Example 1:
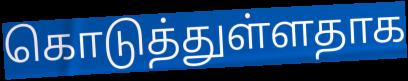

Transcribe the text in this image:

கொடுத்துள்ளதாக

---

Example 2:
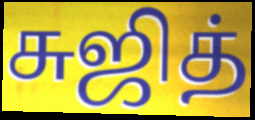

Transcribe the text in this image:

சுஜித்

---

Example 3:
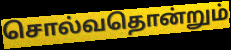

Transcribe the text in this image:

சொல்வதொன்றும்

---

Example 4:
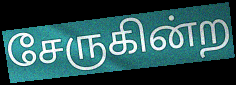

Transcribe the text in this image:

சேருகின்ற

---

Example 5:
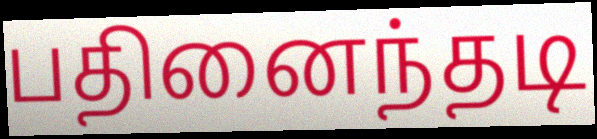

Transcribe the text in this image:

பதினைந்தடி